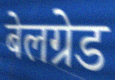
बेलग्रेड